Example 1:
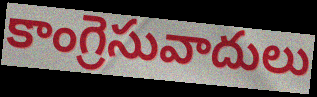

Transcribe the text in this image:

కాంగ్రెసువాదులు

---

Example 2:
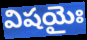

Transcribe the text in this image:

విషయైః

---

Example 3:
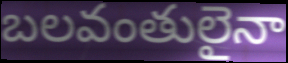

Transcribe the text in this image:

బలవంతులైనా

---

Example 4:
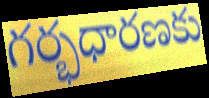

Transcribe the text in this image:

గర్భధారణకు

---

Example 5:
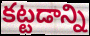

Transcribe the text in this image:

కట్టడాన్ని